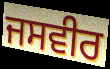
ਜਸਵੀਰ